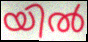
യിൽ